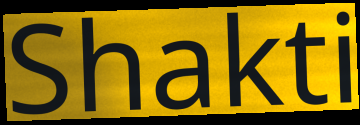
Shakti